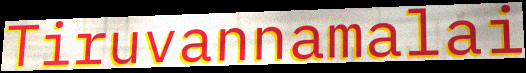
Tiruvannamalai